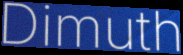
Dimuth